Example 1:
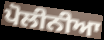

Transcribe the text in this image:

ਪੋਲੀਨੀਆ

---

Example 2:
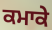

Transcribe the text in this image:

ਕਮਾਕੇ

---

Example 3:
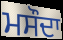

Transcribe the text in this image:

ਮਸੌਦਾ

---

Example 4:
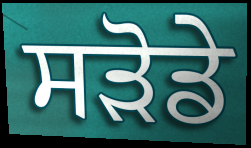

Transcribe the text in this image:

ਸੜੋਡੇ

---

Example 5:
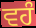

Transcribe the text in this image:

ਵਹੰ